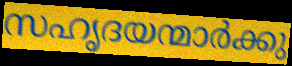
സഹൃദയന്മാർക്കു